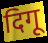
दिगू